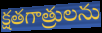
క్షతగాత్రులను